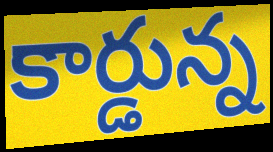
కార్డున్న